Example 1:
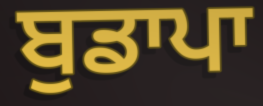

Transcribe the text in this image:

ਬੁਡਾਪਾ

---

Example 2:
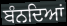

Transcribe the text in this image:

ਬੰਨਦਿਆਂ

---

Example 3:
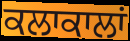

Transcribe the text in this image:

ਕਲਾਕਾਲਾਂ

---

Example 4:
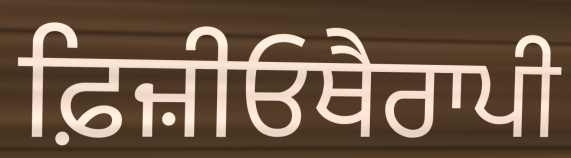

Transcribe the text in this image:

ਫ਼ਿਜ਼ੀਓਥੈਰਾਪੀ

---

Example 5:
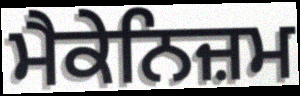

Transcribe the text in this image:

ਮੈਕੇਨਿਜ਼ਮ